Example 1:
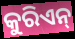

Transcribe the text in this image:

କୁରିଏନ୍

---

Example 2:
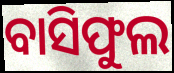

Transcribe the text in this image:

ବାସିଫୁଲ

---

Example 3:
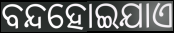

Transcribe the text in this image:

ବନ୍ଦହୋଇଯାଏ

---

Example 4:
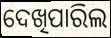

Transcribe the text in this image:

ଦେଖିପାରିଲ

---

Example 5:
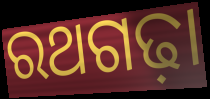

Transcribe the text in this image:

ରଥଗଢ଼ା